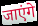
जाएंगे